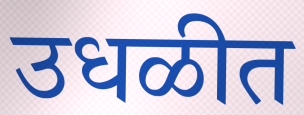
उधळीत